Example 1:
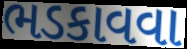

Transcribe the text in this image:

ભડકાવવા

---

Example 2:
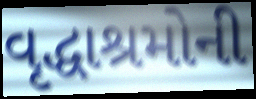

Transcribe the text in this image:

વૃદ્ધાશ્રમોની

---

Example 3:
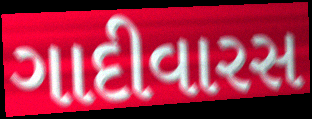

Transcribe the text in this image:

ગાદીવારસ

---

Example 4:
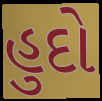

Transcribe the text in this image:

હુદો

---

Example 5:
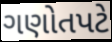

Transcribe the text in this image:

ગણોતપટે